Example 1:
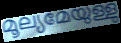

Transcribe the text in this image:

മൂല്യമേയുള്ളു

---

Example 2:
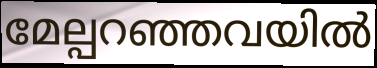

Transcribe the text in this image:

മേല്പറഞ്ഞവയിൽ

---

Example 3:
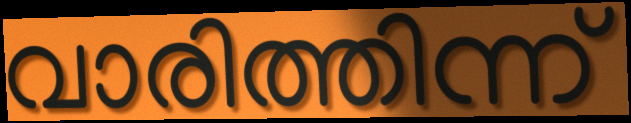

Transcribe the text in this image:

വാരിത്തിന്ന്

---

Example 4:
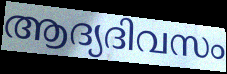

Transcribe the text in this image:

ആദ്യദിവസം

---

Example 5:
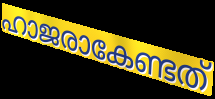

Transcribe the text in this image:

ഹാജരാകേണ്ടത്